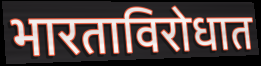
भारताविरोधात